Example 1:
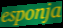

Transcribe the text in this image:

esponja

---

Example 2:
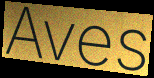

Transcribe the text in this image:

Aves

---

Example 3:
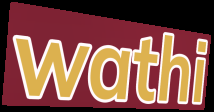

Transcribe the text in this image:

wathi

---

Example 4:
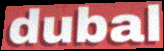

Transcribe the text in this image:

dubal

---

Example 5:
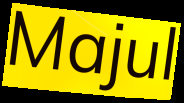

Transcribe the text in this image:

Majul